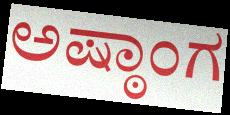
ಅಷ್ಠಾಂಗ